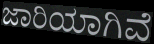
ಜಾರಿಯಾಗಿವೆ